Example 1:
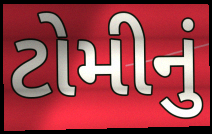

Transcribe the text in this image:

ટોમીનું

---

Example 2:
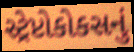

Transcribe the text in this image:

સ્ટ્રેપ્ટોકોકસનું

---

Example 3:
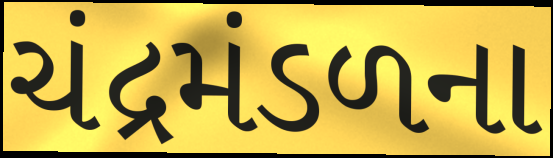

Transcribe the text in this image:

ચંદ્રમંડળના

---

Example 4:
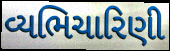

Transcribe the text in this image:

વ્યભિચારિણી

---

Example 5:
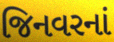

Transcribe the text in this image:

જિનવરનાં